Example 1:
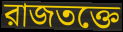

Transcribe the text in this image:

রাজতক্তে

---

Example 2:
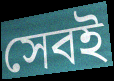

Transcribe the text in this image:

সেবই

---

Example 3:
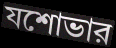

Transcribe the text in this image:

যশোভার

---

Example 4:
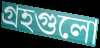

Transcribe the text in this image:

গ্রহগুলো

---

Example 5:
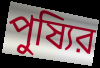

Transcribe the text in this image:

পুষ্যির